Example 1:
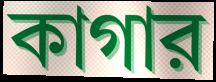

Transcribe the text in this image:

কাগার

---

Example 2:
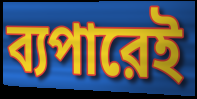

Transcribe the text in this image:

ব্যপারেই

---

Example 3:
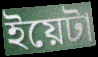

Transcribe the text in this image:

ইয়েটা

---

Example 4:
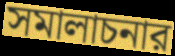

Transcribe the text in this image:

সমালাচনার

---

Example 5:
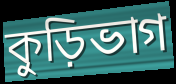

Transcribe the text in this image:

কুড়িভাগ